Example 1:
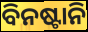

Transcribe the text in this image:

ବିନଷ୍ଟାନି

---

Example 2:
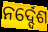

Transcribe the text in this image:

ନର୍ଦ୍ଦେଶ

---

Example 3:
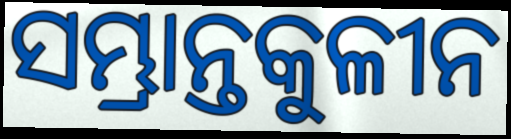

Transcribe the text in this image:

ସମ୍ଭ୍ରାନ୍ତକୁଳୀନ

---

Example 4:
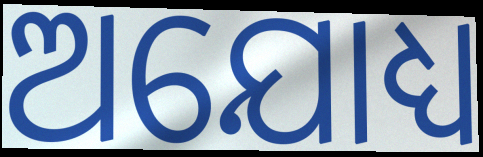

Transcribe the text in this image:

ଅଯୋଧ୍ୟ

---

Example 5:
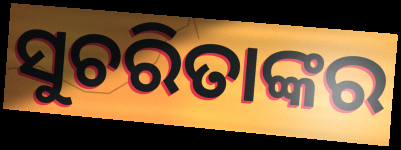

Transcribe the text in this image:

ସୁଚରିତାଙ୍କର